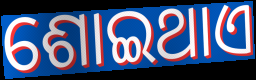
ଶୋଇଥାଏ